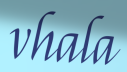
vhala